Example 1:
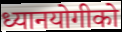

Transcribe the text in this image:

ध्यानयोगीको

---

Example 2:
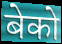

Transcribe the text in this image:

बेको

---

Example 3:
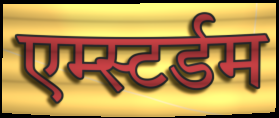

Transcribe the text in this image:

एम्स्टर्डम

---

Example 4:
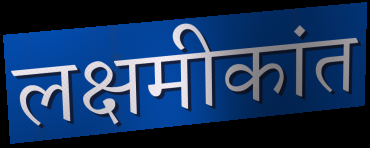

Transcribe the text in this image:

लक्षमीकांत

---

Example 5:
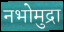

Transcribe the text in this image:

नभोमुद्रा